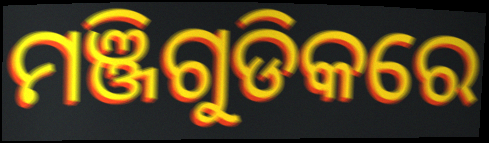
ମଞ୍ଜିଗୁଡିକରେ